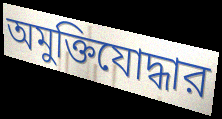
অমুক্তিযোদ্ধার